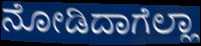
ನೋಡಿದಾಗೆಲ್ಲಾ